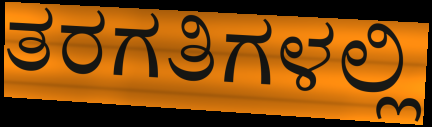
ತರಗತಿಗಳಲ್ಲಿ